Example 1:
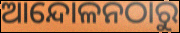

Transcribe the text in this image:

ଆନ୍ଦୋଳନଠାରୁ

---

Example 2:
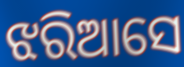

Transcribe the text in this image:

ଝରିଆସେ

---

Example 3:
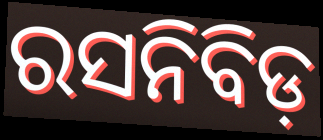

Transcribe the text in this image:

ରସନିବିଡ଼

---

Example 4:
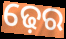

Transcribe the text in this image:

ଢ଼େର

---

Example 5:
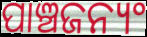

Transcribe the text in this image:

ପାଞ୍ଚଜନ୍ୟଂ